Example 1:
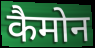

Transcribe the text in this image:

कैमोन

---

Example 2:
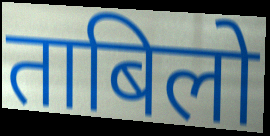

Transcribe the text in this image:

ताबिलो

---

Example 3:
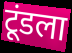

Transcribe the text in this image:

टूंडला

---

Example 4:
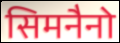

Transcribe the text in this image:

सिमनैनो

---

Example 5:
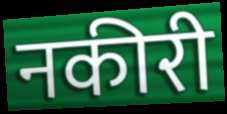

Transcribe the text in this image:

नकीरी